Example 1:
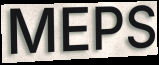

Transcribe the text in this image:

MEPS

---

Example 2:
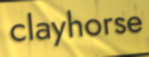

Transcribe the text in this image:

clayhorse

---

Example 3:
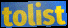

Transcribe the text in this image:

tolist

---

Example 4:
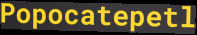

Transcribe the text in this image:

Popocatepetl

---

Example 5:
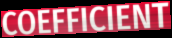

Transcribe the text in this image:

COEFFICIENT